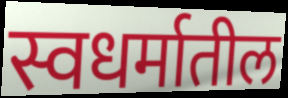
स्वधर्मातील